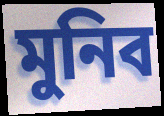
মুনিব